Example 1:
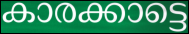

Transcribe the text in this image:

കാരക്കാട്ടെ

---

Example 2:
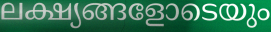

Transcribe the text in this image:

ലക്ഷ്യങ്ങളോടെയും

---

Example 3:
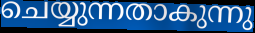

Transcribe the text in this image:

ചെയ്യുന്നതാകുന്നു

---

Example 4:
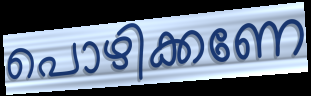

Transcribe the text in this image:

പൊഴിക്കണേ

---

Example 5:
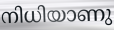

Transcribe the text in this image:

നിധിയാണു